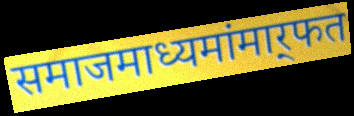
समाजमाध्यमांमार्फत